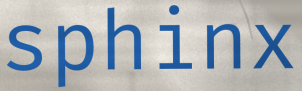
sphinx